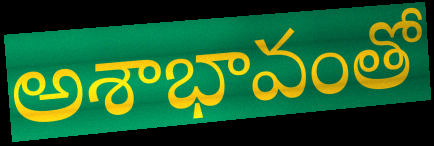
అశాభావంతో